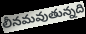
లీనమవుతున్నది